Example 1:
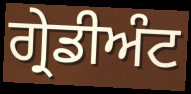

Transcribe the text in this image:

ਗ੍ਰੇਡੀਅੰਟ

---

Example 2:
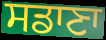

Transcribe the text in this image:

ਸਡਾਣਾ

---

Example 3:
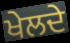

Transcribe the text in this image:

ਖੇਲਦੇ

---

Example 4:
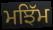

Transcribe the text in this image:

ਮਝਿੱਮ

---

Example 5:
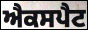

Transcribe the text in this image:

ਐਕਸਪੈਟ